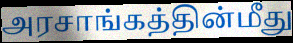
அரசாங்கத்தின்மீது